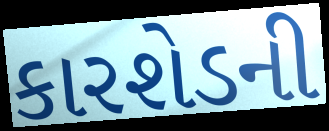
કારશેડની